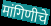
मांगिणीचे